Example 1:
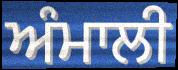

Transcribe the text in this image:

ਅੰਮਾਲੀ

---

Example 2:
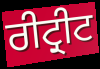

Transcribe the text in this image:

ਰੀਟ੍ਰੀਟ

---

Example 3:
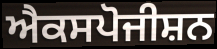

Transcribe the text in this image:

ਐਕਸਪੋਜੀਸ਼ਨ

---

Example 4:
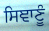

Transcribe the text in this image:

ਸਿਞਾਣੂੰ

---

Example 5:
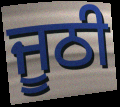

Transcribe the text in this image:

ਜੂਠੀ